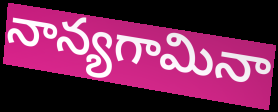
నాన్యగామినా